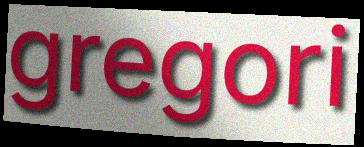
gregori